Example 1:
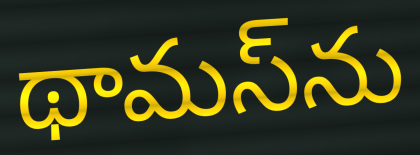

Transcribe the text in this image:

థామస్‌ను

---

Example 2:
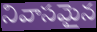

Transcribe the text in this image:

నివాసమైన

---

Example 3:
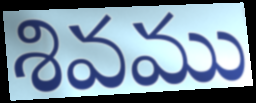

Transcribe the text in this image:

శివము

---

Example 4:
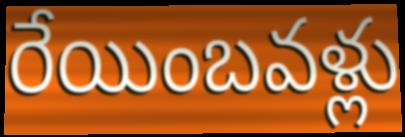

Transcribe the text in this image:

రేయింబవళ్లు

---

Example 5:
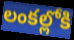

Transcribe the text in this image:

లంకల్లోకి